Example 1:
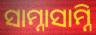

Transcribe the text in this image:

ସାମ୍ନାସାମ୍ନି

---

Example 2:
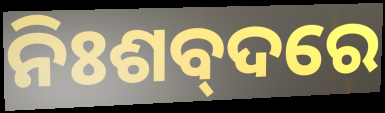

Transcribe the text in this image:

ନିଃଶବ୍‌ଦରେ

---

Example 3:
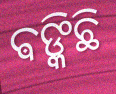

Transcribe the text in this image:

ଵଙ୍କିଛି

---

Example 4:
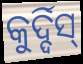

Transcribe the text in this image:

କୁର୍ଦ୍ଦିସ୍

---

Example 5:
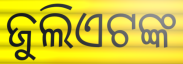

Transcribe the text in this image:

ଜୁଲିଏଟଙ୍କ